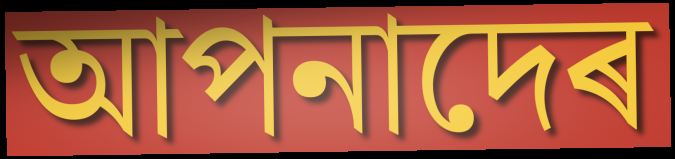
আপনাদেৰ